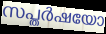
സപ്തർഷയോ